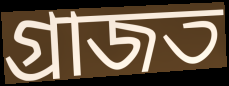
গ্ৰাজত